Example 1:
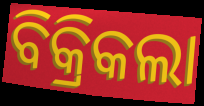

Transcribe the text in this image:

ବିକ୍ରିକଲା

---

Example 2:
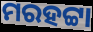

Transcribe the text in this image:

ମରହଟ୍ଟା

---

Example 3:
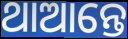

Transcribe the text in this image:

ଥାଆନ୍ତେ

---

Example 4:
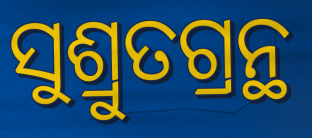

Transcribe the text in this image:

ସୁଶ୍ରୁତଗ୍ରନ୍ଥ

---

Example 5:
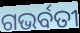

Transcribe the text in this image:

ଗଭର୍ବତୀ